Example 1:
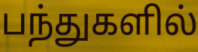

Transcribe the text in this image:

பந்துகளில்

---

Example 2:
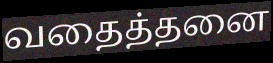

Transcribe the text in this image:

வதைத்தனை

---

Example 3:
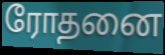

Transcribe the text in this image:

ரோதனை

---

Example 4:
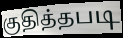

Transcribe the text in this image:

குதித்தபடி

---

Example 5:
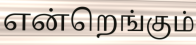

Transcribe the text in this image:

என்றெங்கும்